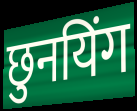
छुनयिंग